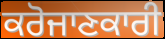
ਕਰੋਜਾਣਕਾਰੀ